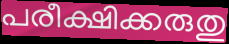
പരീക്ഷിക്കരുതു